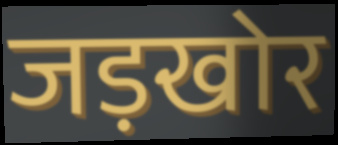
जड़खोर